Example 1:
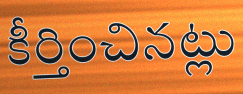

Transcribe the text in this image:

కీర్తించినట్లు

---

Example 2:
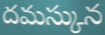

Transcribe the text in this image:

దమస్కున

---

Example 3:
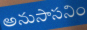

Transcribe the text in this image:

అనుసాసనిం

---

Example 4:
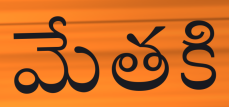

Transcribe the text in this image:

మేతకి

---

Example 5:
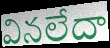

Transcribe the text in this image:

వినలేదా